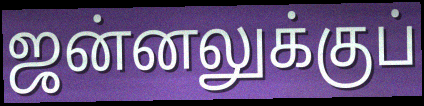
ஜன்னலுக்குப்